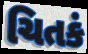
ચિતકં